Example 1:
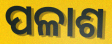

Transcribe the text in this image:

ପଳାଶ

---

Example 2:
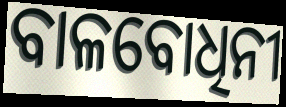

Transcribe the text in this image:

ବାଳବୋଧିନୀ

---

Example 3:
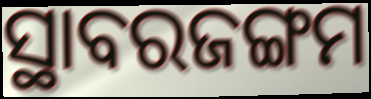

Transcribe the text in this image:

ସ୍ଥାବରଜଙ୍ଗମ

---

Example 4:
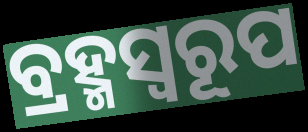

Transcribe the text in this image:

ବ୍ରହ୍ମସ୍ୱରୂପ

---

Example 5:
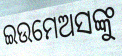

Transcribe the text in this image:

ଇଉମେଅସଙ୍କୁ